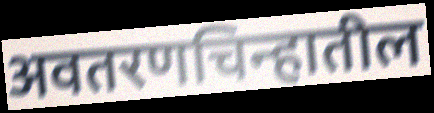
अवतरणचिन्हातील